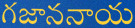
గజాననాయ